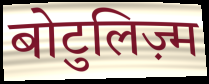
बोटुलिज़्म